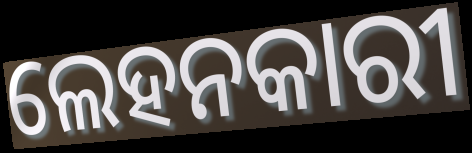
ଲେହନକାରୀ